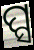
ପ୍ସ